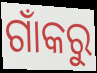
ଗାଁକରୁ